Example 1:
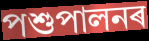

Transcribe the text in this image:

পশুপালনৰ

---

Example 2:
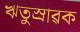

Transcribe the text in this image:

ঋতুস্ৰাৱক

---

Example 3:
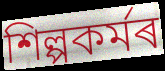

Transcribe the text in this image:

শিল্পকৰ্মৰ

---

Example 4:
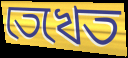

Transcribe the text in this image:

তেখেত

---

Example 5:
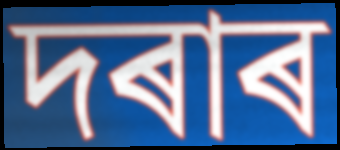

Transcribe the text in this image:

দৰাৰ